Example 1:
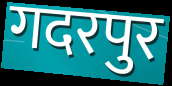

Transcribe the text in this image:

गदरपुर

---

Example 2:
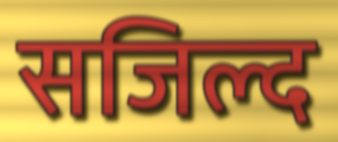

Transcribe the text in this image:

सजिल्द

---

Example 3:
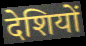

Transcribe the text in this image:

देशियों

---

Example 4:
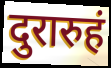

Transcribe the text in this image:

दुरारुहं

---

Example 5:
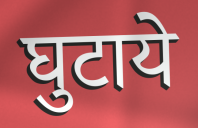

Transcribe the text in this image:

घुटाये